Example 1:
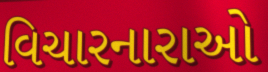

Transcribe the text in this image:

વિચારનારાઓ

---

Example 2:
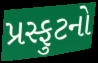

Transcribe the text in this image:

પ્રસ્ફુટનો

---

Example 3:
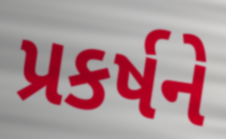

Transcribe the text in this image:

પ્રકર્ષને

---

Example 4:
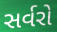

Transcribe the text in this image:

સર્વરો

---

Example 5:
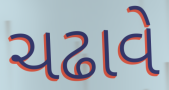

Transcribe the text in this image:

ચઢાવે